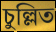
চুল্লিত